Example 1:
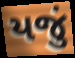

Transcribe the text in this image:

યજું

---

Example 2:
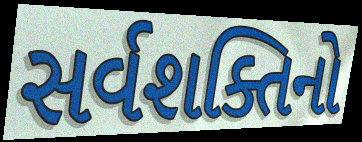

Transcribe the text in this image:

સર્વશક્તિનો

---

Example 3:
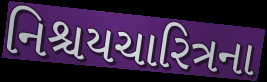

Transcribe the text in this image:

નિશ્ચયચારિત્રના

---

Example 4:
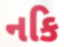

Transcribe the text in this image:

નકિ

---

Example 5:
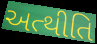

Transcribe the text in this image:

અત્થીતિ